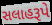
સલાહરૂપે